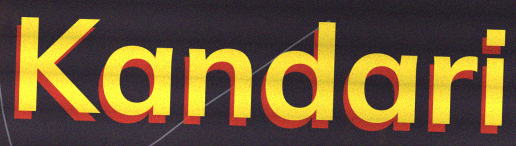
Kandari